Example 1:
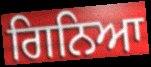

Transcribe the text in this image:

ਗਿਨਿਆ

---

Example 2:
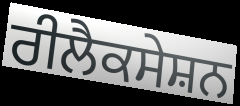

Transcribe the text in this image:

ਰੀਲੈਕਸੇਸ਼ਨ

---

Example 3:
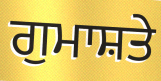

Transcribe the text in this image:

ਗੁਮਾਸ਼ਤੇ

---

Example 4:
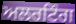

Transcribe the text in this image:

ਅਲਰਟਿੰਗ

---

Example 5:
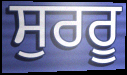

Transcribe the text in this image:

ਸੁਰਰੂ